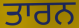
ਤਾਰਨ